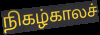
நிகழ்காலச்